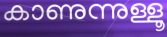
കാണുന്നുള്ളൂ